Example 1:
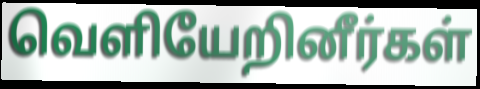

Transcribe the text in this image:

வெளியேறினீர்கள்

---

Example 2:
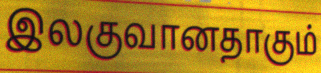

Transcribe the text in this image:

இலகுவானதாகும்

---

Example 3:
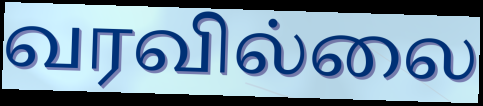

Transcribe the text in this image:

வரவில்லை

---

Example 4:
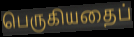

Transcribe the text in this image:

பெருகியதைப்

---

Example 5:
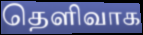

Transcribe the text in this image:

தெளிவாக